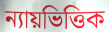
ন্যায়ভিত্তিক